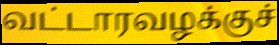
வட்டாரவழக்குச்